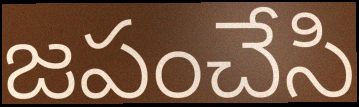
జపంచేసి